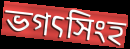
ভগৎসিংহ